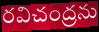
రవిచంద్రను